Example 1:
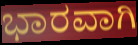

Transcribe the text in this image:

ಭಾರವಾಗಿ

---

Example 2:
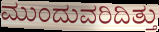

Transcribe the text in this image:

ಮುಂದುವರಿದಿತ್ತು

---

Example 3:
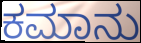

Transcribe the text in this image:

ಕಮಾನು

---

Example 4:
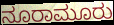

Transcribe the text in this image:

ನೂರಾಮೂರು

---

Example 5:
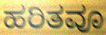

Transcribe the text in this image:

ಹರಿತವೂ